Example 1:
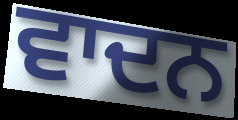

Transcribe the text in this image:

ਵਾਦਨ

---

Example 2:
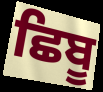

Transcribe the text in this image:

ਛਿਬੂ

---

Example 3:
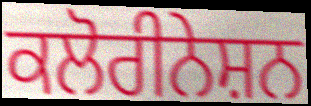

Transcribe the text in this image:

ਕਲੋਰੀਨੇਸ਼ਨ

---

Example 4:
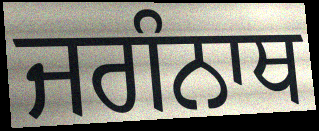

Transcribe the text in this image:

ਜਗੰਨਾਥ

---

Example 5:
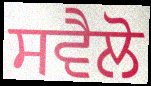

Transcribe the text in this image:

ਸਵੈਲੋ